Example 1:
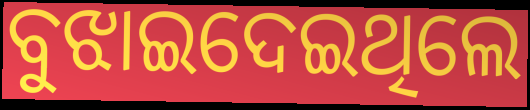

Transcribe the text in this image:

ବୁଝାଇଦେଇଥିଲେ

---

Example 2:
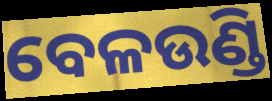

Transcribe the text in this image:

ବେଳଉଣ୍ଡି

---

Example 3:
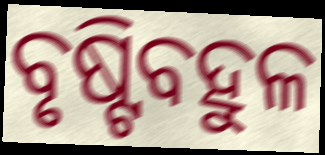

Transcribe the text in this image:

ବୃଷ୍ଟିବହୁଳ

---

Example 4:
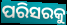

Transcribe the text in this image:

ପରିସରକୁ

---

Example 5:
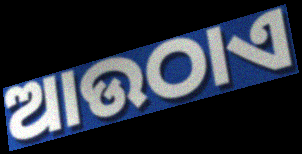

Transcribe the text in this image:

ଆଉଠାଏ